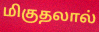
மிகுதலால்